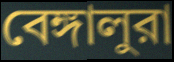
বেঙ্গালুরা